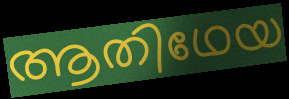
ആതിഥേയ